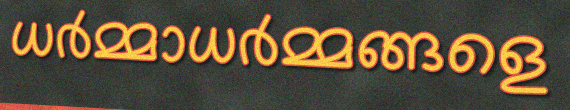
ധർമ്മാധർമ്മങ്ങളെ